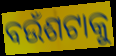
ବଉଁଶଟାକୁ